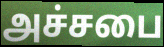
அச்சபை